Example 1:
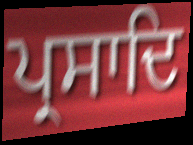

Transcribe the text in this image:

ਪ੍ਰਸਾਦਿ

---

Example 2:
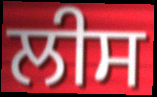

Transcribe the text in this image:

ਲੀਸ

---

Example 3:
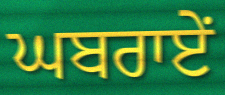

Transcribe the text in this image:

ਘਬਰਾਏਂ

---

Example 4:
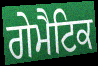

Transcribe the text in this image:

ਗੇਮੈਟਿਕ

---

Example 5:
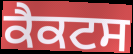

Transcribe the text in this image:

ਕੈਕਟਸ